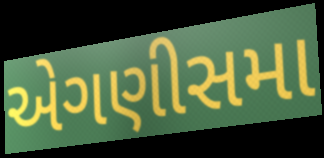
એગણીસમા